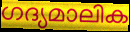
ഗദ്യമാലിക